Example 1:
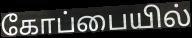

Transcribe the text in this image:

கோப்பையில்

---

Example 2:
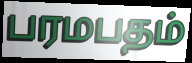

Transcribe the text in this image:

பரமபதம்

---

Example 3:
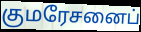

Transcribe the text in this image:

குமரேசனைப்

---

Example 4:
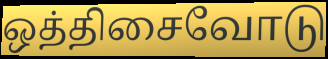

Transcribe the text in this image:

ஒத்திசைவோடு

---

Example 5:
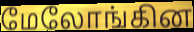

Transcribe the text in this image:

மேலோங்கின